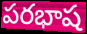
పరభాష